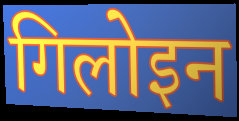
गिलोइन